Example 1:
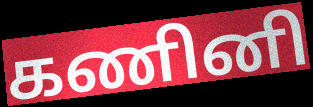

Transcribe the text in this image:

கணினி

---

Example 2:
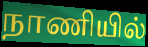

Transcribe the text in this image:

நாணியில்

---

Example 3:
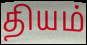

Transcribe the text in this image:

தியம்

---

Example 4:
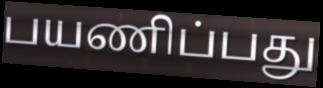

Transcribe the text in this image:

பயணிப்பது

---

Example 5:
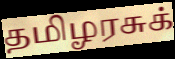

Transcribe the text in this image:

தமிழரசுக்